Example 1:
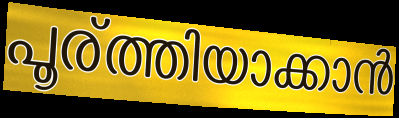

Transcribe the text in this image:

പൂര്ത്തിയാക്കാൻ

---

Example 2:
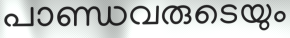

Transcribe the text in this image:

പാണ്ഡവരുടെയും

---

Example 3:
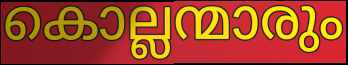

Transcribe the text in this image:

കൊല്ലന്മാരും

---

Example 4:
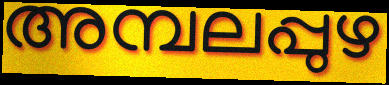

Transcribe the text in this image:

അമ്പലപ്പുഴ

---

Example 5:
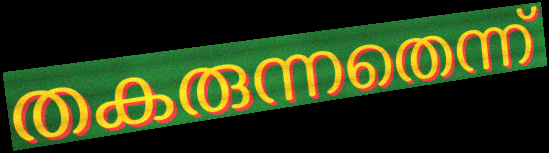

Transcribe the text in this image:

തകരുന്നതെന്ന്